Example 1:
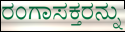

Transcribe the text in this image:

ರಂಗಾಸಕ್ತರನ್ನು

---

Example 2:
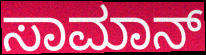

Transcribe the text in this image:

ಸಾಮಾನ್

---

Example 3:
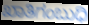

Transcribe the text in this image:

ಖಾತಿಗಂಬುಧಿ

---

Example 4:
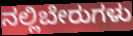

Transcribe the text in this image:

ನಲ್ಲಿಬೇರುಗಳು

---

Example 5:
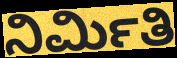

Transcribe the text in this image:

ನಿರ್ಮಿತಿ